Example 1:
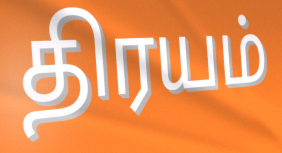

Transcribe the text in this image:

திரயம்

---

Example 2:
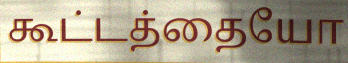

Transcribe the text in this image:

கூட்டத்தையோ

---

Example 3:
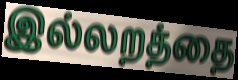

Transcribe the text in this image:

இல்லறத்தை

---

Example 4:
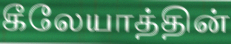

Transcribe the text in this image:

கீலேயாத்தின்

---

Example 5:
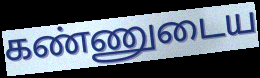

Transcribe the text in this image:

கண்ணுடைய